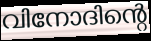
വിനോദിന്റെ